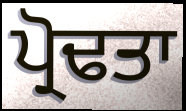
ਪ੍ਰੋਢਤਾ